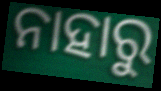
ନାହାରୁ